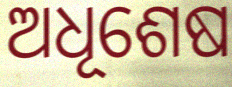
ଅଧୂଶେଷ